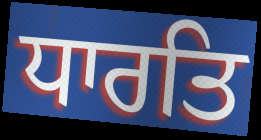
ਧਾਰਤਿ